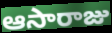
ఆసారాజు